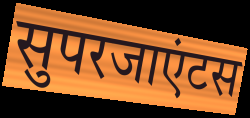
सुपरजाएंटस